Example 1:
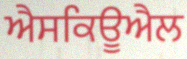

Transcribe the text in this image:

ਐਸਕਿਊਐਲ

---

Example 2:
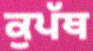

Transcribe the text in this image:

ਕੁਪੱਥ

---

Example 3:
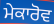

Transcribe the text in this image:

ਮੇਕਾਰੋਵ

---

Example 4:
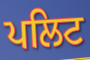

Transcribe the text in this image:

ਪਲਿਟ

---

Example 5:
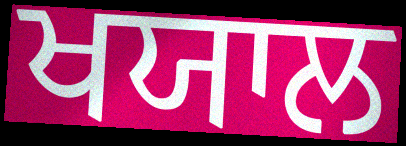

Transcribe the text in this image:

ਖਯਾਲ